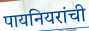
पायनियरांची